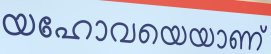
യഹോവയെയാണ്